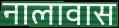
नालावास